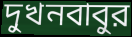
দুখনবাবুর